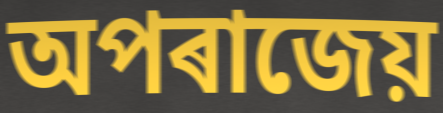
অপৰাজেয়